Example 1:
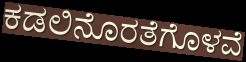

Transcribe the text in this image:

ಕಡಲಿನೊರತೆಗೊಳವೆ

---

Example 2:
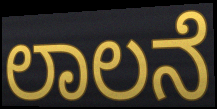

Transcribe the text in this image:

ಲಾಲನೆ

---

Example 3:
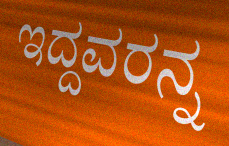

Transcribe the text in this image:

ಇದ್ದವರನ್ನ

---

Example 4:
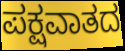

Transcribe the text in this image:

ಪಕ್ಷವಾತದ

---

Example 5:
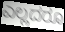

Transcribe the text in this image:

ಎಲ್ಲದರೂ